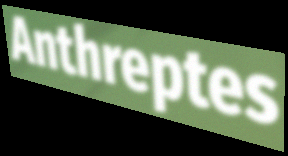
Anthreptes